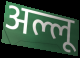
अल्लू